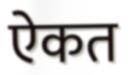
ऐकत